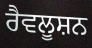
ਰੈਵਲੂਸ਼ਨ